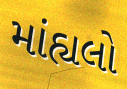
માંહ્યલો